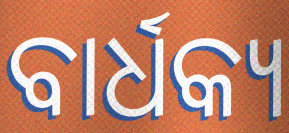
ବାର୍ଧକ୍ୟ